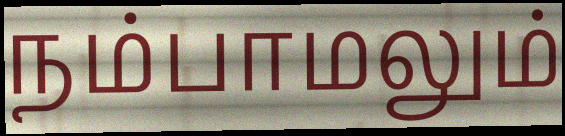
நம்பாமலும்